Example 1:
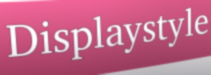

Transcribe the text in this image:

Displaystyle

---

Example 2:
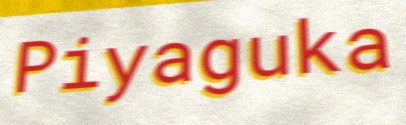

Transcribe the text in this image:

Piyaguka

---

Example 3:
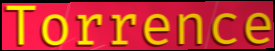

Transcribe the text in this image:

Torrence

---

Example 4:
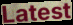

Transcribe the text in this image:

Latest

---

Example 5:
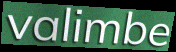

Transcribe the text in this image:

valimbe